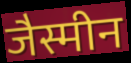
जैस्मीन